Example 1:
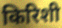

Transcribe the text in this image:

किरिशी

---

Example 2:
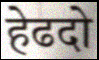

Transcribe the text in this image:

हेढदो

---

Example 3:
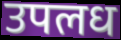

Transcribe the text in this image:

उपलध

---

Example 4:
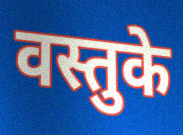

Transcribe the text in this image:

वस्तुके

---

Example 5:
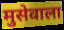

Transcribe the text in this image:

मुसेवाला